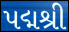
પદ્મશ્રી